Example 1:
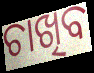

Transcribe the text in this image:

ଚାଖିବ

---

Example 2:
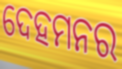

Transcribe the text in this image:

ଦେହମନର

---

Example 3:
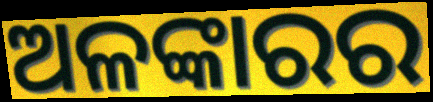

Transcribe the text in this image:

ଅଳଙ୍କାରର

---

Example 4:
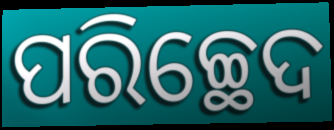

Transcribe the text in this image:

ପରିଚ୍ଛେଦ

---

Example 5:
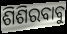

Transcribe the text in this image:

ଶିଶିରବାବୁ